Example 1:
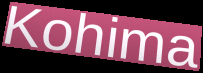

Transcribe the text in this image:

Kohima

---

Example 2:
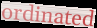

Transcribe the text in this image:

ordinated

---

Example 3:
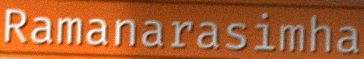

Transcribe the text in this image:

Ramanarasimha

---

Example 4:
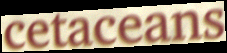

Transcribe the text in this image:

cetaceans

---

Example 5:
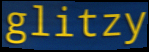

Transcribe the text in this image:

glitzy